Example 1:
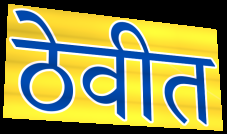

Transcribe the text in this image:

ठेवीत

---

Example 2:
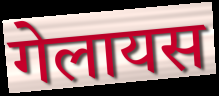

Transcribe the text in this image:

गेलायस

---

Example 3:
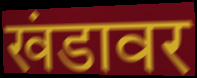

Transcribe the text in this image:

खंडावर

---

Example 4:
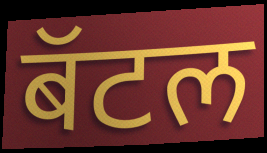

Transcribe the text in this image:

बॅटल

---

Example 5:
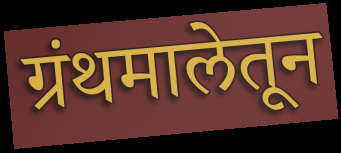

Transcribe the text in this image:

ग्रंथमालेतून